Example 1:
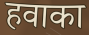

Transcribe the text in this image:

हवाका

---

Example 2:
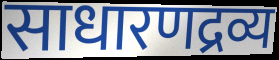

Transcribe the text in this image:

साधारणद्रव्य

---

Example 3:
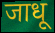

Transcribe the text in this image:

जाधू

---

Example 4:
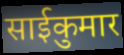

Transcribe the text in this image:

साईकुमार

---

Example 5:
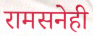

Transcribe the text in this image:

रामसनेही